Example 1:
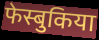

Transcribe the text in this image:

फेस्बुकिया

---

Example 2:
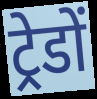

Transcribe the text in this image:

ट्रेडों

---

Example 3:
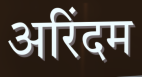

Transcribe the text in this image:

अरिंदम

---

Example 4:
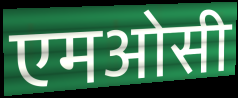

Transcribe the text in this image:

एमओसी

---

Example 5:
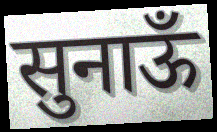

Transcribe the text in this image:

सुनाऊँ